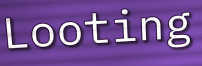
Looting